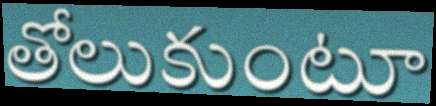
తోలుకుంటూ